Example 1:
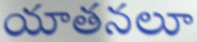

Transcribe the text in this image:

యాతనలూ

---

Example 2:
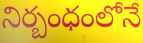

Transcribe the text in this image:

నిర్బంధంలోనే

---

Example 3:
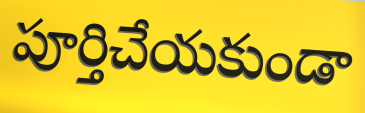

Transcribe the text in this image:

పూర్తిచేయకుండా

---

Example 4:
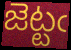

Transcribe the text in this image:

జెట్టఁ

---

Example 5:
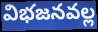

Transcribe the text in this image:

విభజనవల్ల